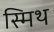
स्मिथ